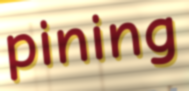
pining